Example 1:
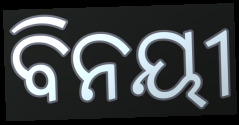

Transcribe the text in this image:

ବିନୟୀ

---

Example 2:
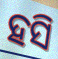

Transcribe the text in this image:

ହସି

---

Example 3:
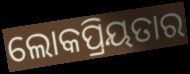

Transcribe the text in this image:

ଲୋକପ୍ରିୟତାର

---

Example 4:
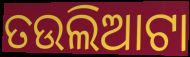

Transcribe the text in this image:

ତଉଲିଆଟା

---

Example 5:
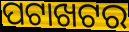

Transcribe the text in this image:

ପଟାଖଟର